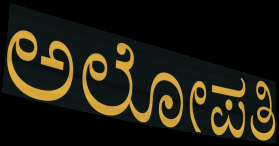
ಅಲೋಪತಿ